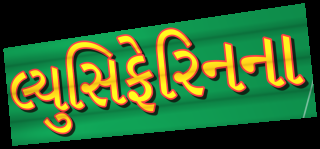
લ્યુસિફેરિનના